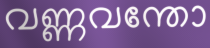
വണ്ണവന്തോ